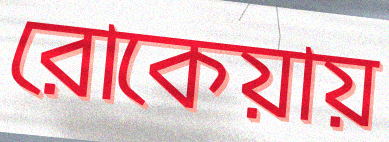
রোকেয়ায়